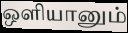
ஒளியானும்